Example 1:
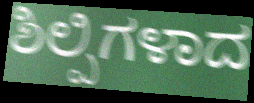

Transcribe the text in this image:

ಶಿಲ್ಪಿಗಳಾದ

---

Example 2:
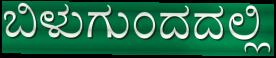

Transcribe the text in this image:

ಬಿಳುಗುಂದದಲ್ಲಿ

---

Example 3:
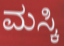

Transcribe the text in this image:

ಮಸ್ಕಿ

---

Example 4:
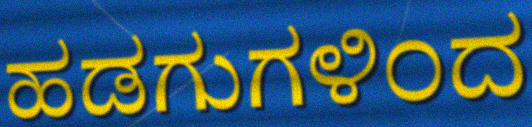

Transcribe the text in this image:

ಹಡಗುಗಳಿಂದ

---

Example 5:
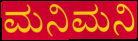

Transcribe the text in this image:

ಮನಿಮನಿ